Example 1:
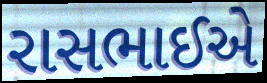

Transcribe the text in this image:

રાસભાઈએ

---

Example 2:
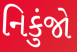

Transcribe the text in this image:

નિકુંજો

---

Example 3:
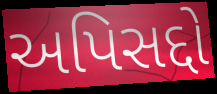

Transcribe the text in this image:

અપિસદ્દો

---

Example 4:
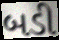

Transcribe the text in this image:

બડી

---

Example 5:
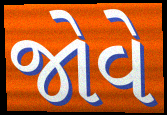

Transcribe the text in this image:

જોવે